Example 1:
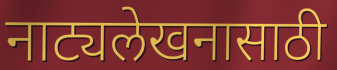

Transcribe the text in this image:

नाट्यलेखनासाठी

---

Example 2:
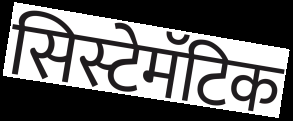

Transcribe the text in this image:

सिस्टेमॅटिक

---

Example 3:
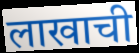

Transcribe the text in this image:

लाखाची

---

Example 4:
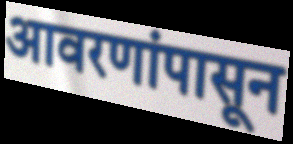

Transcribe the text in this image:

आवरणांपासून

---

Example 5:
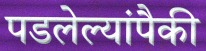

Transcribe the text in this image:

पडलेल्यांपैकी